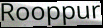
Rooppur